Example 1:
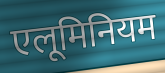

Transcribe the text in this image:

एलूमिनियम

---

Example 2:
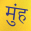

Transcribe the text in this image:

मुंह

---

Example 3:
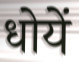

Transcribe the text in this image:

धोयें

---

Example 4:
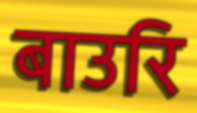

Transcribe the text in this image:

बाउरि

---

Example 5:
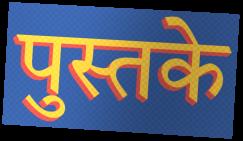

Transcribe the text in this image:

पुस्‍तके